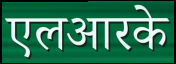
एलआरके